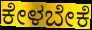
ಕೇಳಬೇಕೆ